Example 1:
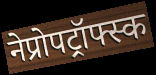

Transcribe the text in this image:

नेप्रोपट्रॉफ्स्क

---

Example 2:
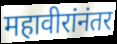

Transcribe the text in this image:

महावीरांनंतर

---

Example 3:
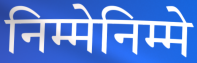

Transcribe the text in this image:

निम्मेनिम्मे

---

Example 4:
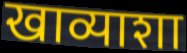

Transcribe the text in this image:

खाव्याशा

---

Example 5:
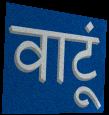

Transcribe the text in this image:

वाटूं